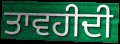
ਤਾਵਹੀਦੀ